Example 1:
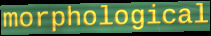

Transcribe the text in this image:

morphological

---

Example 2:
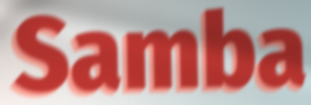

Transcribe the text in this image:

Samba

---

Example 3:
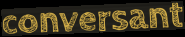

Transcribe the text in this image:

conversant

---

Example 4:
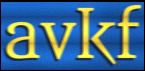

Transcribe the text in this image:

avkf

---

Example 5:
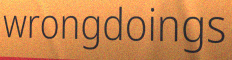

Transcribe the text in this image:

wrongdoings